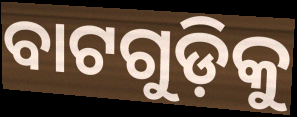
ବାଟଗୁଡ଼ିକୁ